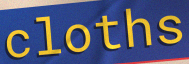
cloths